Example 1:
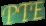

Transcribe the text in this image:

PTE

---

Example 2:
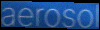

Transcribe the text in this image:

aerosol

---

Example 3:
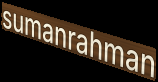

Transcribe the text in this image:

sumanrahman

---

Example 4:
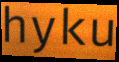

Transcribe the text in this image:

hyku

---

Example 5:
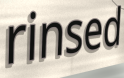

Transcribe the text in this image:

rinsed